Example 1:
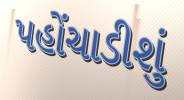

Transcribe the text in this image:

પહોંચાડીશું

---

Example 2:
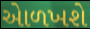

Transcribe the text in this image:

એાળખશે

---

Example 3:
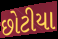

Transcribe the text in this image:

છોટીયા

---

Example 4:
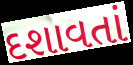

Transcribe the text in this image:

દશાવતાં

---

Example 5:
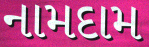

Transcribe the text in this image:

નામદામ